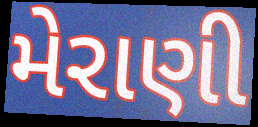
મેરાણી